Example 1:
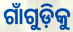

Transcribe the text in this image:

ଗାଁଗୁଡ଼ିକୁ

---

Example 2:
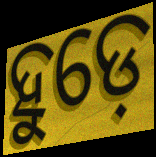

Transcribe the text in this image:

ହୁଡ଼େ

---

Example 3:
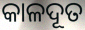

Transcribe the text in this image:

କାଳଦୂତ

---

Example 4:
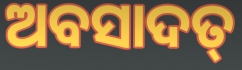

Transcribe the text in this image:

ଅବସାଦତ୍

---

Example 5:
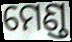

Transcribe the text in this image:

ମେଣ୍ଡ